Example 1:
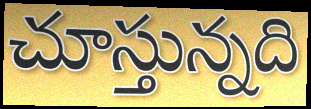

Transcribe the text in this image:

చూస్తున్నది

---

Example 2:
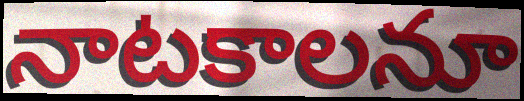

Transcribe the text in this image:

నాటకాలనూ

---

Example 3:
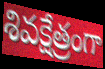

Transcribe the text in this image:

శివక్షేత్రంగా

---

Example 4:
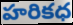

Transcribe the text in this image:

హరికధ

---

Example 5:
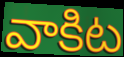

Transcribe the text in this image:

వాకిట